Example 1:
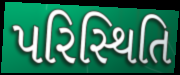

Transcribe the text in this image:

પરિસ્‍થિતિ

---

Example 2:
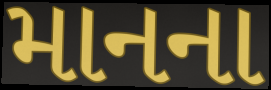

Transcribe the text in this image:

માનના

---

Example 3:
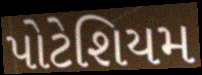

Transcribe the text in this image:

પોટેશિયમ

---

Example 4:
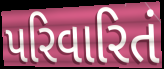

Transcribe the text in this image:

પરિવારિતં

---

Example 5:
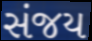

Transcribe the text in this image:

સંજય